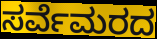
ಸರ್ವೆಮರದ